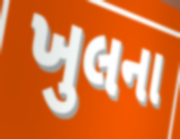
ખુલના